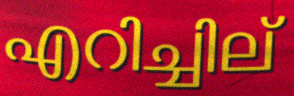
എറിച്ചില്